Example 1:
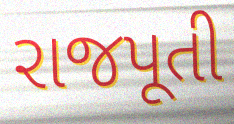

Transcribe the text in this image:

રાજપૂતી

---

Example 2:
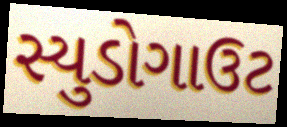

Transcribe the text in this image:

સ્યુડોગાઉટ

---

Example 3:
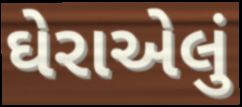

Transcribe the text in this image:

ઘેરાએલું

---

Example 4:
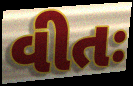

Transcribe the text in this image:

વીતઃ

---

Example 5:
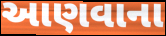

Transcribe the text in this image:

આણવાના